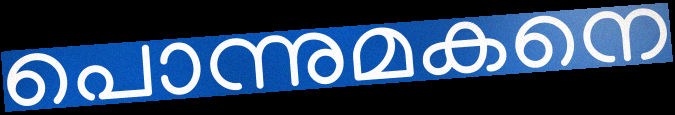
പൊന്നുമകനെ